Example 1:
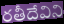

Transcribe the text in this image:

రతీదేవిని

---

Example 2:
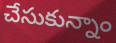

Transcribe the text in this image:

చేసుకున్నాం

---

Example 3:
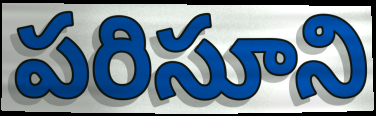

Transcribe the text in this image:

పరిసూని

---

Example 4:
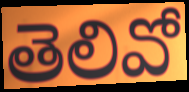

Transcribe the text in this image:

తెలివో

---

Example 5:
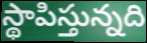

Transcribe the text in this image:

స్థాపిస్తున్నది